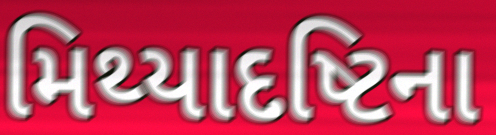
મિથ્યાદષ્ટિના